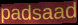
padsaad